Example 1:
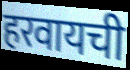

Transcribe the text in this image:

हरवायची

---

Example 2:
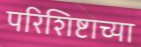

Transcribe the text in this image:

परिशिष्टाच्या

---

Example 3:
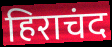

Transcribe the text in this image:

हिराचंद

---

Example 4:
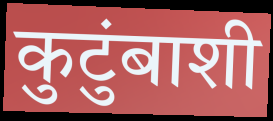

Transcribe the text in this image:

कुटुंबाशी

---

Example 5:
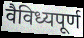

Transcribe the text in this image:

वैविध्यपूर्ण